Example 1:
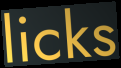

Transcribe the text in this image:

licks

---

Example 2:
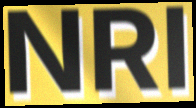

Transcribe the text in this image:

NRI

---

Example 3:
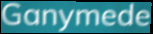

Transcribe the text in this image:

Ganymede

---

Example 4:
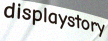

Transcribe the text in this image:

displaystory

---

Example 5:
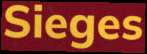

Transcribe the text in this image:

Sieges